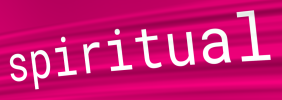
spiritual